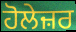
ਹੋਲੇਜ਼ਰ